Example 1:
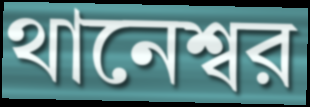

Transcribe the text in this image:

থানেশ্বর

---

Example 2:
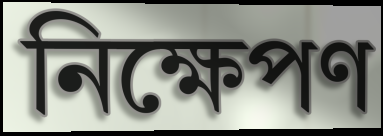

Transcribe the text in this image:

নিক্ষেপণ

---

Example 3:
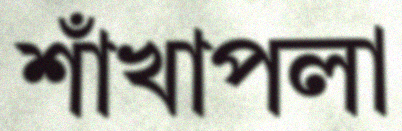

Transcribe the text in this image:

শাঁখাপলা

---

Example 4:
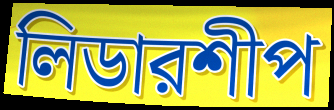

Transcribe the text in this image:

লিডারশীপ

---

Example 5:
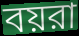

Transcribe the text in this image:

বয়রা